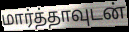
மார்த்தாவுடன்